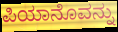
ಪಿಯಾನೊವನ್ನು